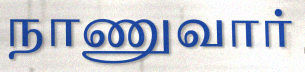
நாணுவார்